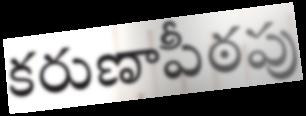
కరుణాపీఠపు